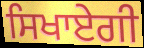
ਸਿਖਾਏਗੀ